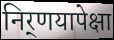
निर्णयापेक्षा